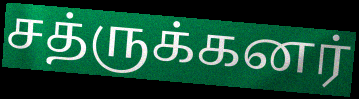
சத்ருக்கனர்